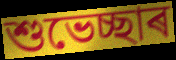
শুভেচ্ছাৰ